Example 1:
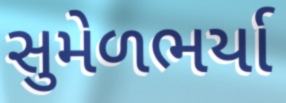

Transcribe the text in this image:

સુમેળભર્યા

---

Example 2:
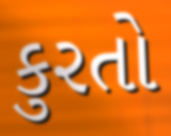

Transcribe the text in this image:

કુરતો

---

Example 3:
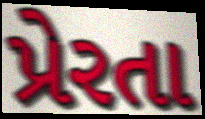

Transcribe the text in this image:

પ્રેરતા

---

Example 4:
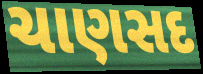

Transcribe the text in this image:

ચાણસદ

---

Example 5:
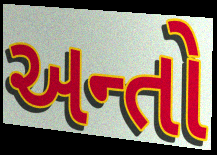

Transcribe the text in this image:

અન્તો